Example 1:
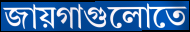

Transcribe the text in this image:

জায়গাগুলোতে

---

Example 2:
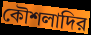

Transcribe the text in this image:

কৌশলাদির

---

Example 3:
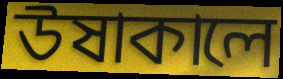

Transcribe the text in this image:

উষাকালে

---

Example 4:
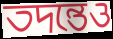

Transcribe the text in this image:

তদন্তেও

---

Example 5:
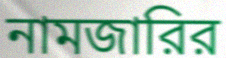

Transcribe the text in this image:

নামজারির